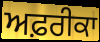
ਅਫ਼ਰੀਕਾ